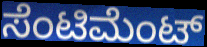
ಸೆಂಟಿಮೆಂಟ್